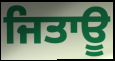
ਜਿਤਾਊ